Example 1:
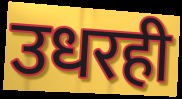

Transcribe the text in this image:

उधरही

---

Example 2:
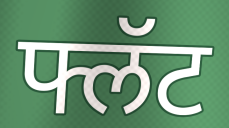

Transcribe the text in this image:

फ्लॅट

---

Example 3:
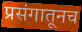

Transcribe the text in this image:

प्रसंगातूनच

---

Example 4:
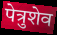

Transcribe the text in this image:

पेत्रुशेव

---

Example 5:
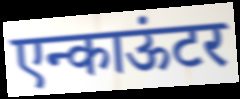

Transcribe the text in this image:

एन्काऊंटर